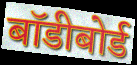
बॉडीबोर्ड